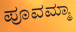
ಪೂವಮ್ಮಾ